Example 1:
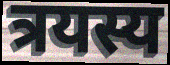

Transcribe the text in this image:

त्रयस्य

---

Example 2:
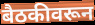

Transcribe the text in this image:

बैठकीवरून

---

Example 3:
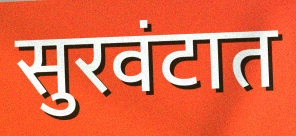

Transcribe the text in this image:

सुरवंटात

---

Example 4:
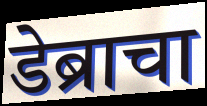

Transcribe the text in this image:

डेब्राचा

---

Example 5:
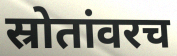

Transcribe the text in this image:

स्रोतांवरच